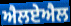
ਐਲਏਐਲ